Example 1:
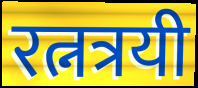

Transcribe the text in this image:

रत्नत्रयी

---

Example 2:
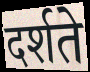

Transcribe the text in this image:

दर्शते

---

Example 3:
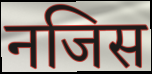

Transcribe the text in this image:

नजिस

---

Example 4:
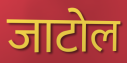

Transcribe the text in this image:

जाटोल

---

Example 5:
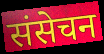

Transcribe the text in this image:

संसेचन